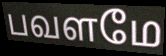
பவளமே